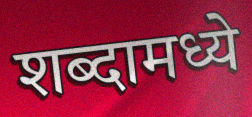
शब्दामध्ये